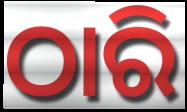
ଠାରି